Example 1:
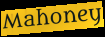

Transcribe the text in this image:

Mahoney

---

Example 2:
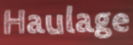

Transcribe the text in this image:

Haulage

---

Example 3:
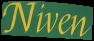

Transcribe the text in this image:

Niven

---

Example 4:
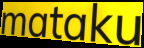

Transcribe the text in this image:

mataku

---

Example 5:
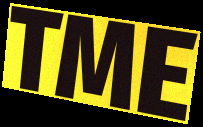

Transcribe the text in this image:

TME